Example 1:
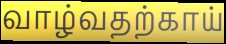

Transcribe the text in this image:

வாழ்வதற்காய்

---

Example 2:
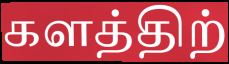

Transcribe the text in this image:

களத்திற்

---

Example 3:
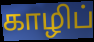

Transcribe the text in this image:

காழிப்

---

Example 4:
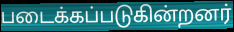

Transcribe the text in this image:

படைக்கப்படுகின்றனர்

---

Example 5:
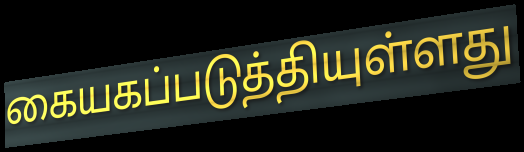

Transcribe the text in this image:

கையகப்படுத்தியுள்ளது